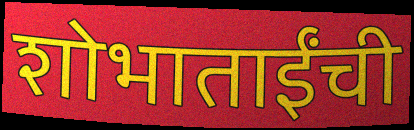
शोभाताईंची